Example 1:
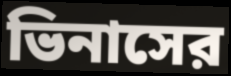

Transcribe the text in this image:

ভিনাসের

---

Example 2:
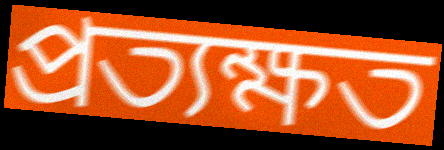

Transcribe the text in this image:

প্রত্যক্ষত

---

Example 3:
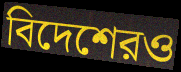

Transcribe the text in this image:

বিদেশেরও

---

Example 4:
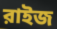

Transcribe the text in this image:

রাইজ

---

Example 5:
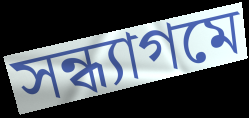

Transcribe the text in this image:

সন্ধ্যাগমে